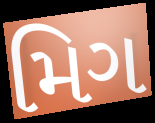
મિગ